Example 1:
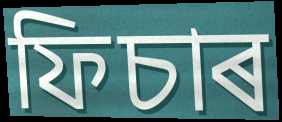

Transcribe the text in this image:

ফিচাৰ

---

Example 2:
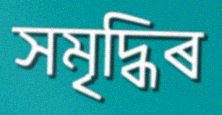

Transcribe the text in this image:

সমৃদ্ধিৰ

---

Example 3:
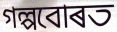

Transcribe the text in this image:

গল্পবোৰত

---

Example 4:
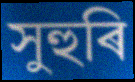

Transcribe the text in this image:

সুহুৰি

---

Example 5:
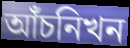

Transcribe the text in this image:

আঁচনিখন